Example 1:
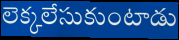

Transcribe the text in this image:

లెక్కలేసుకుంటాడు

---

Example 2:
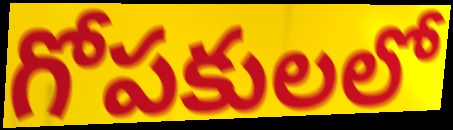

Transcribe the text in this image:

గోపకులలో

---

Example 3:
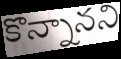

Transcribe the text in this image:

కొన్నానని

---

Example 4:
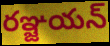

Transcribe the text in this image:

రఞ్జయన్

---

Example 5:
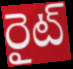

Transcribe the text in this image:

రైట్